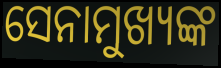
ସେନାମୁଖ୍ୟଙ୍କ